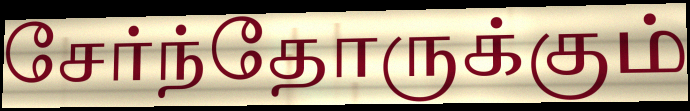
சேர்ந்தோருக்கும்